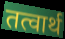
तत्वार्थ